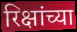
रिक्षांच्या